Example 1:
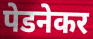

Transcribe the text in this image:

पेडनेकर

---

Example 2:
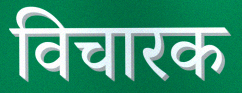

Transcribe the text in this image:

विचारक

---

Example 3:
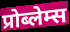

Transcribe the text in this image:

प्रोब्लेम्स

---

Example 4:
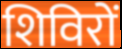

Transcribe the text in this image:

शिविरों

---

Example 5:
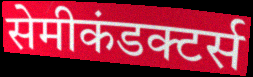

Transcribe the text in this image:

सेमीकंडक्टर्स